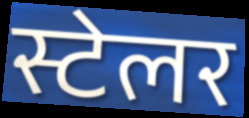
स्टेलर